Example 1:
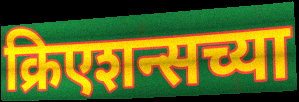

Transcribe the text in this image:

क्रिएशन्सच्या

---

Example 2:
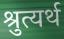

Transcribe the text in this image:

श्रुत्यर्थ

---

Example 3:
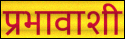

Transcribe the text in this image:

प्रभावाशी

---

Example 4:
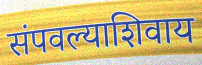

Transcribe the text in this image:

संपवल्याशिवाय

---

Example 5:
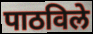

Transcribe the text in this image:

पाठविले